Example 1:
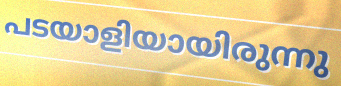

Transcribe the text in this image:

പടയാളിയായിരുന്നു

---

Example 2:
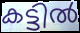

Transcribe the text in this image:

കട്ടിൽ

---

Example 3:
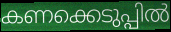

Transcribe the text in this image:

കണക്കെടുപ്പിൽ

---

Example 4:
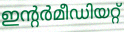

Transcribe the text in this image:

ഇന്റർമീഡിയറ്റ്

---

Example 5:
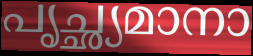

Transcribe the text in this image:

പൃച്ഛ്യമാനാ